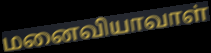
மனைவியாவாள்